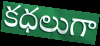
కధలుగా